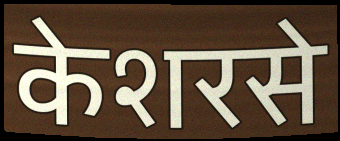
केशरसे